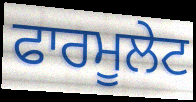
ਫਾਰਮੂਲੇਟ